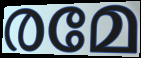
രമേ